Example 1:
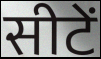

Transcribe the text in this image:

सीटें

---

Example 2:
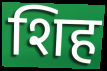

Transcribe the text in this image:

शिह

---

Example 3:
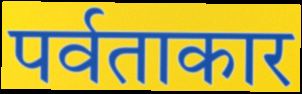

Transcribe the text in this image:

पर्वताकार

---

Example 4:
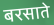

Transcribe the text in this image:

बरसाते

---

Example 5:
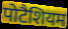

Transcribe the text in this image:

पोटैशियम